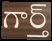
గార్త్